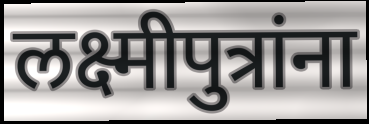
लक्ष्मीपुत्रांना